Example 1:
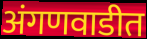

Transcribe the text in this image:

अंगणवाडीत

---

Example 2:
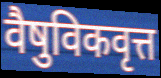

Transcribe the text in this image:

वैषुविकवृत्त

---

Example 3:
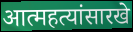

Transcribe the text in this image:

आत्महत्यांसारखे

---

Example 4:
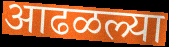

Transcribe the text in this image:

आढळल्या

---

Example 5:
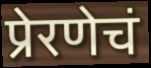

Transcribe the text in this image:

प्रेरणेचं